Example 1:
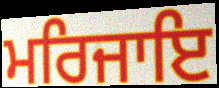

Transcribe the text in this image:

ਮਰਿਜਾਇ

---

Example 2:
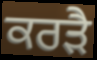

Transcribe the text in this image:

ਕਰੜੈ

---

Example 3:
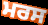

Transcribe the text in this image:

ਮਰਸ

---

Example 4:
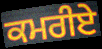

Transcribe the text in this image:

ਕਮਰੀਏ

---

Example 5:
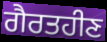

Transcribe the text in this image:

ਗੈਰਤਹੀਣ